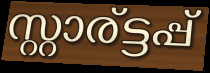
സ്റ്റാര്ട്ടപ്പ്